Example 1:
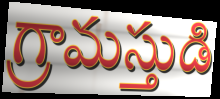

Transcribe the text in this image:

గ్రామస్తుడి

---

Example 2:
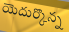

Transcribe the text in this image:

యెదుర్కొన్న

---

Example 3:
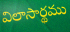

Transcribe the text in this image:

విలాసార్థము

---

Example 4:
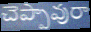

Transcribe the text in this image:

చెప్పావురా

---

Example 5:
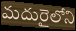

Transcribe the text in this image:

మదురైలోని